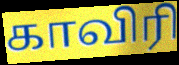
காவிரி